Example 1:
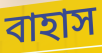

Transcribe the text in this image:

বাহাস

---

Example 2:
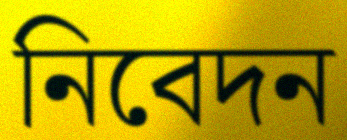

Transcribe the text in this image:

নিবেদন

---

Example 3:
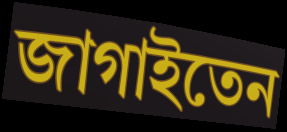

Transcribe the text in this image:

জাগাইতেন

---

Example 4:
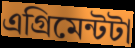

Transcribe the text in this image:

এগ্রিমেন্টটা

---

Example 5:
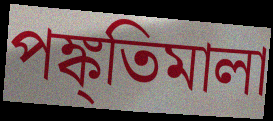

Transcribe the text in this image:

পঙ্ক্তিমালা